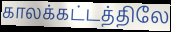
காலக்கட்டத்திலே